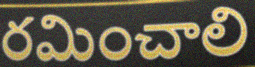
రమించాలి